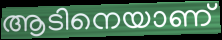
ആടിനെയാണ്